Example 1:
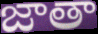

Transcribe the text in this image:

జాతా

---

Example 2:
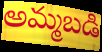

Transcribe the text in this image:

అమ్మబడి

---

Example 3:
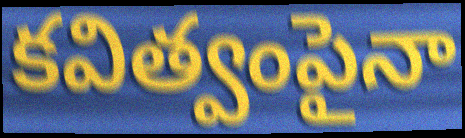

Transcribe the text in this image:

కవిత్వంపైనా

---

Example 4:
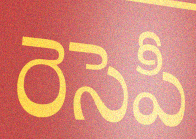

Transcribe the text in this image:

రెసెపీ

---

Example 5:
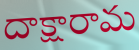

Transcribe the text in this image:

దాక్షారామ